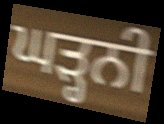
ਘੜ੍ਹਨੀ